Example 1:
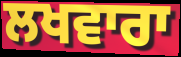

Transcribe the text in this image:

ਲਖਵਾਰਾ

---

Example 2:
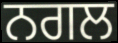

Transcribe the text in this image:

ਨਗਲ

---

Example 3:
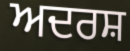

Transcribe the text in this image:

ਅਦਰਸ਼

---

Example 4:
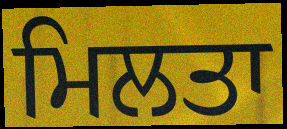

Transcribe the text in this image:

ਮਿਲਤਾ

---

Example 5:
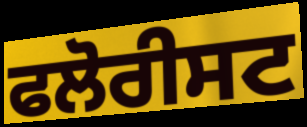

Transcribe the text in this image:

ਫਲੋਰੀਸਟ